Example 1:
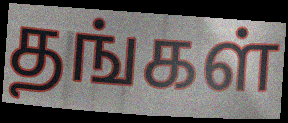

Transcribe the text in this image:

தங்கள்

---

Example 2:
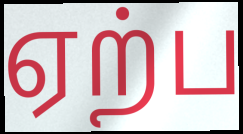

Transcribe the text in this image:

ஏற்ப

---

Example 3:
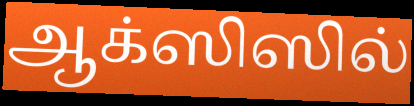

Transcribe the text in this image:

ஆக்ஸிஸில்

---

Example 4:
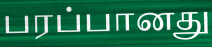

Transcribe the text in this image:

பரப்பானது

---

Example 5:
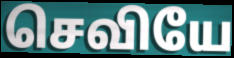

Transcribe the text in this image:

செவியே